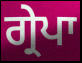
ਗ੍ਰੇਪਾ